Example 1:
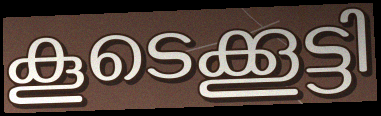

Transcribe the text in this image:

കൂടെക്കൂട്ടി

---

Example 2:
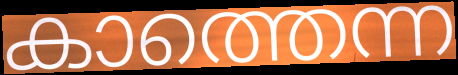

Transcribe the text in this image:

കാത്തെന്ന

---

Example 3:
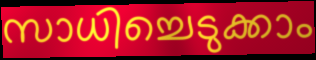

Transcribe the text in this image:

സാധിച്ചെടുക്കാം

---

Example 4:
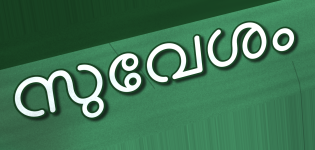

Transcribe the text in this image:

സുവേശം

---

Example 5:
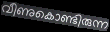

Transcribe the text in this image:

വീണുകൊണ്ടിരുന്ന